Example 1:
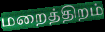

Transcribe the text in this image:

மறைத்திறம்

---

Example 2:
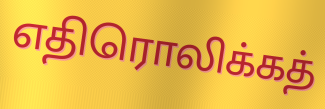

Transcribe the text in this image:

எதிரொலிக்கத்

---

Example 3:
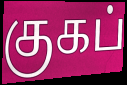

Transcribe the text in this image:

குகப்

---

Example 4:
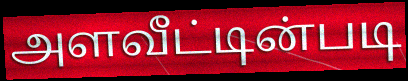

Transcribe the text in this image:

அளவீட்டின்படி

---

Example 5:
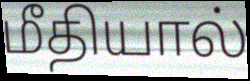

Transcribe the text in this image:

மீதியால்